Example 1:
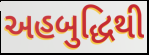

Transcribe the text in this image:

અહબુદ્ધિથી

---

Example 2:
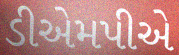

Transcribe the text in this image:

ડીએમપીએ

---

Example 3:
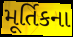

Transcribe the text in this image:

મૂર્તિકના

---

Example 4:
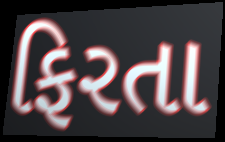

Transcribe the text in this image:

ફિરતા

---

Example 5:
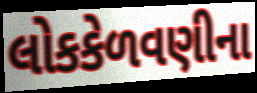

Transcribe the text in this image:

લોકકેળવણીના